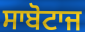
ਸਾਬੋਟਾਜ